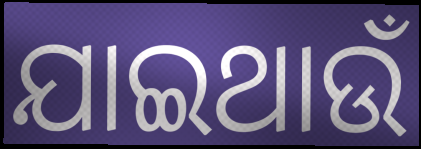
ଯାଇଥାଉଁ